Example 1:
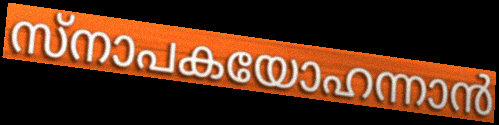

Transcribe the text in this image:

സ്നാപകയോഹന്നാൻ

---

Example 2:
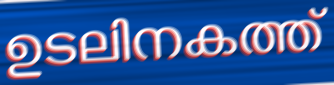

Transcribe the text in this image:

ഉടലിനകത്ത്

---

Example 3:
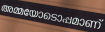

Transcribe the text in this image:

അമ്മയോടൊപ്പമാണ്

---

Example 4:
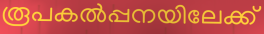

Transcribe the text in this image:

രൂപകൽപ്പനയിലേക്ക്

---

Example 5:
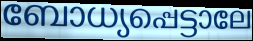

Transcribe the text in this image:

ബോധ്യപ്പെട്ടാലേ